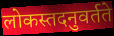
लोकस्तदनुवर्तते